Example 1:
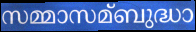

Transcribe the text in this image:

സമ്മാസമ്ബുദ്ധാ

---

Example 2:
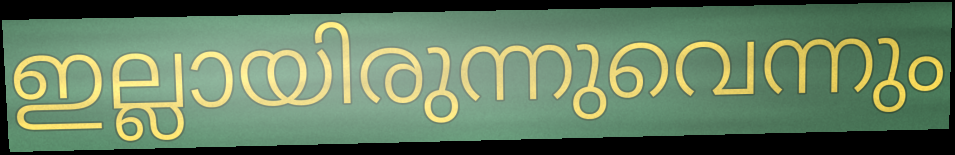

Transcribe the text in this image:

ഇല്ലായിരുന്നുവെന്നും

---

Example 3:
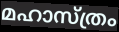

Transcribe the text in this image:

മഹാസ്ത്രം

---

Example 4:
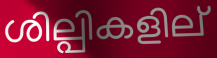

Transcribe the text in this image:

ശില്പികളില്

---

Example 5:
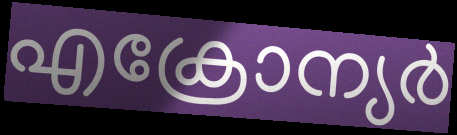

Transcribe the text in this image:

എക്രോന്യർ